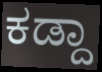
ಕಡ್ದಾ